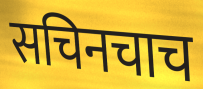
सचिनचाच